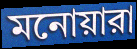
মনোয়ারা